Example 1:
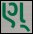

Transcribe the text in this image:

ણ્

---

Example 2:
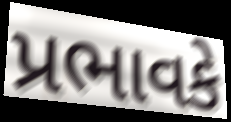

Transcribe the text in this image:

પ્રભાવકે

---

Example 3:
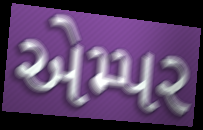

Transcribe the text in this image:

એમ્પર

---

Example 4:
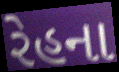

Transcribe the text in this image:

રેહના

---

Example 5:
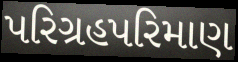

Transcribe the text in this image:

પરિગ્રહપરિમાણ